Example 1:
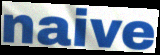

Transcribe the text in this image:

naive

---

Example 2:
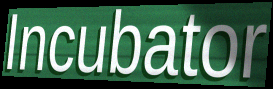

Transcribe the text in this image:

Incubator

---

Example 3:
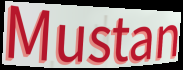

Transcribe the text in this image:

Mustan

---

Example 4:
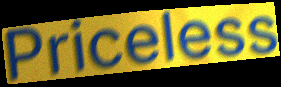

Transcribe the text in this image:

Priceless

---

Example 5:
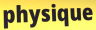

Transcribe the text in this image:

physique